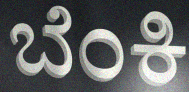
ಬೆಂಕಿ